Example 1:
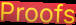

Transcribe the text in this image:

Proofs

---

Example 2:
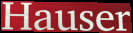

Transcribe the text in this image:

Hauser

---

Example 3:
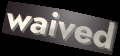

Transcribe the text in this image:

waived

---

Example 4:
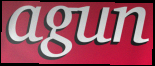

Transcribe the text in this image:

agun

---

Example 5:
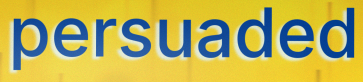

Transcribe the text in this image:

persuaded